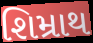
શિમ્રાથ